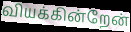
வியக்கின்றேன்